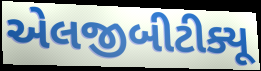
એલજીબીટીક્યૂ